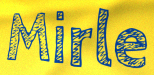
Mirle